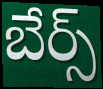
బేర్స్